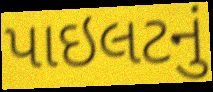
પાઇલટનું